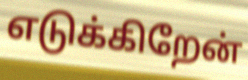
எடுக்கிறேன்